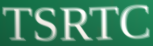
TSRTC